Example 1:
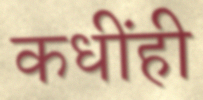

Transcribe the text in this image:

कधींही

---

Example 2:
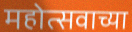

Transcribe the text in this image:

महोत्सवाच्या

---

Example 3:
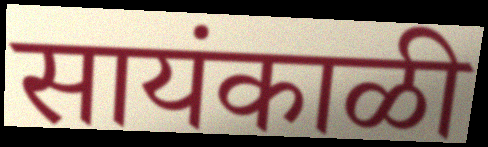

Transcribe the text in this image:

सायंकाळी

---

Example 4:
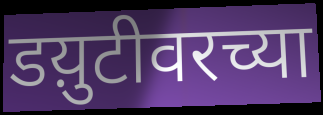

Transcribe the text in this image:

डय़ुटीवरच्या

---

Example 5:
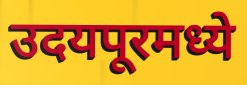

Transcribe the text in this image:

उदयपूरमध्ये